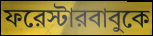
ফরেস্টারবাবুকে